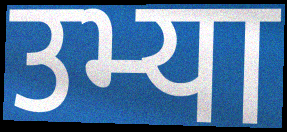
उभ्या